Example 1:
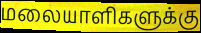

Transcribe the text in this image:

மலையாளிகளுக்கு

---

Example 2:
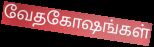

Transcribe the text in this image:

வேதகோஷங்கள்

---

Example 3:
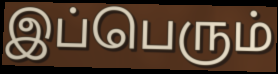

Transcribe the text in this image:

இப்பெரும்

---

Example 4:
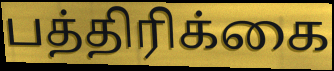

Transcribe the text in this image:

பத்திரிக்கை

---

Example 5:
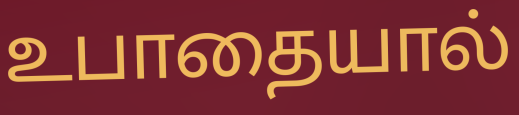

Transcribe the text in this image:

உபாதையால்